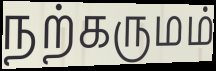
நற்கருமம்